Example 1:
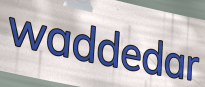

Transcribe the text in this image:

waddedar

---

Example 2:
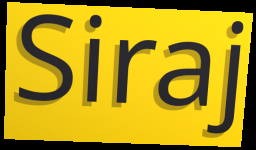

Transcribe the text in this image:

Siraj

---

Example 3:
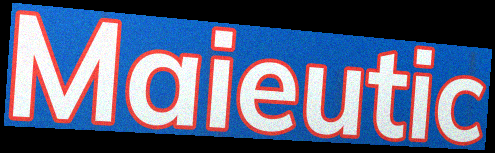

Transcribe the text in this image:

Maieutic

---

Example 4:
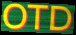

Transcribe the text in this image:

OTD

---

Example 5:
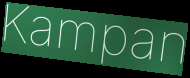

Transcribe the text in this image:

Kampan